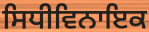
ਸਿਧੀਵਿਨਾਇਕ